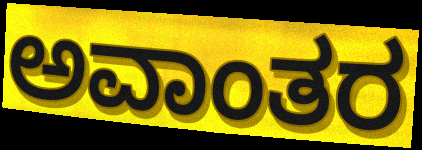
ಅವಾಂತರ